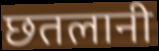
छतलानी